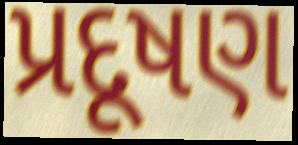
પ્રદૂષણ